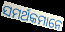
ସମର୍ଥକମାନେ